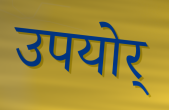
उपयोर्